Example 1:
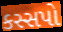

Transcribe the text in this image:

કસ્સપો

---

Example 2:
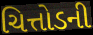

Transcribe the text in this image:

ચિત્તોડની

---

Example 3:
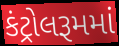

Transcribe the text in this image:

કંટ્રોલરૂમમાં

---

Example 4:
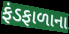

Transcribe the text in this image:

ફંડફાળાના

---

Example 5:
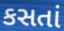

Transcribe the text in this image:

કસતાં